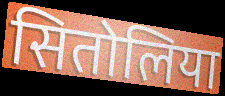
सितोलिया